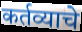
कर्तव्याचे